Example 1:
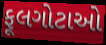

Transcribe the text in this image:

ફૂલગોટાઓ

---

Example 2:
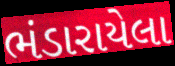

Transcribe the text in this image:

ભંડારાયેલા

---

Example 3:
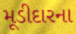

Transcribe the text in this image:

મૂડીદારના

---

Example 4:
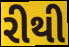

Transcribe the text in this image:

રીથી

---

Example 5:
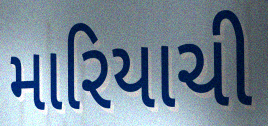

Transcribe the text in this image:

મારિયાચી